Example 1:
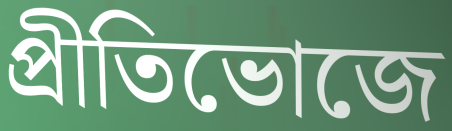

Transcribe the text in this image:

প্রীতিভোজে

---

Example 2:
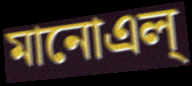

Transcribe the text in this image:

মানোএল্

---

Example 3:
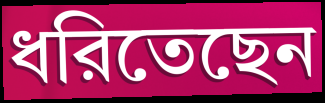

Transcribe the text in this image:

ধরিতেছেন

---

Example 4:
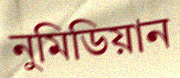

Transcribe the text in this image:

নুমিডিয়ান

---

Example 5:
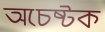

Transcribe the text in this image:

অচেষ্টক